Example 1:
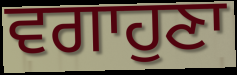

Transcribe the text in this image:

ਵਗਾਹੁਣਾ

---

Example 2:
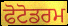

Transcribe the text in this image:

ਫੋਟੋਡਰਮ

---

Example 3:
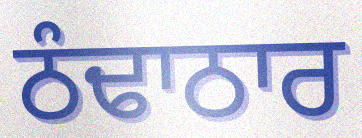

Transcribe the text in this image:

ਠੰਢਾਠਾਰ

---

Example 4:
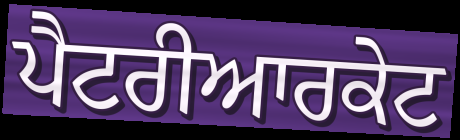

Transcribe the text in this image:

ਪੈਟਰੀਆਰਕੇਟ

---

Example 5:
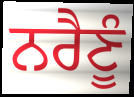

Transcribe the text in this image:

ਨਰੈਣੂੰ